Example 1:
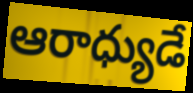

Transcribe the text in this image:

ఆరాధ్యుడే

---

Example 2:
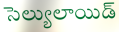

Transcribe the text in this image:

సెల్యులాయిడ్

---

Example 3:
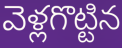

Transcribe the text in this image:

వెళ్లగొట్టిన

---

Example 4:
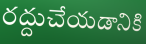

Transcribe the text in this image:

రద్దుచేయడానికి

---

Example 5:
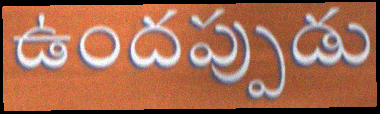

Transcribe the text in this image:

ఉందప్పుడు